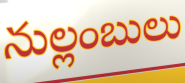
నుల్లంబులు